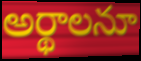
అర్థాలనూ